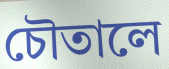
চৌতালে